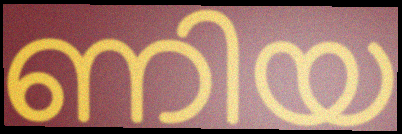
ണിയ